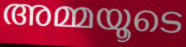
അമ്മയൂടെ